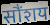
सौंशय